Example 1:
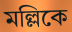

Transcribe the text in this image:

মল্লিকে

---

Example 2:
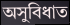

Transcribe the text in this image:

অসুবিধাত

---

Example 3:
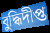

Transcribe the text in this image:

বুদ্ধিদীপ্ত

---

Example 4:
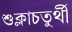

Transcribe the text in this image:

শুক্লাচতুৰ্থী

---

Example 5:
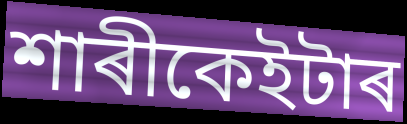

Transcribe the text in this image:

শাৰীকেইটাৰ